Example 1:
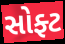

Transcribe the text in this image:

સોફ્ટ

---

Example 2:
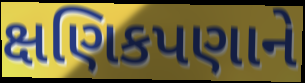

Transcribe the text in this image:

ક્ષણિકપણાને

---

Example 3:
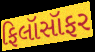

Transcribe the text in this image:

ફિલૉસૉફર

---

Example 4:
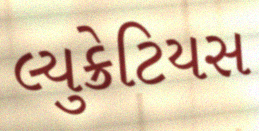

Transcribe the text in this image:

લ્યુક્રેટિયસ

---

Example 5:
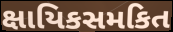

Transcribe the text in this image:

ક્ષાયિકસમકિત